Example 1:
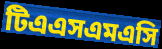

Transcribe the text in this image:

টিএএসএমএসি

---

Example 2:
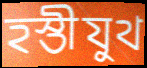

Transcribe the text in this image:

হস্তীযুথ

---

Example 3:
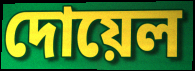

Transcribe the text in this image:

দোয়েল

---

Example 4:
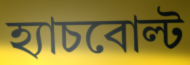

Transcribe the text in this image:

হ্যাচবোল্ট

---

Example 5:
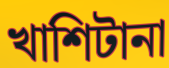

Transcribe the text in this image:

খাশিটানা